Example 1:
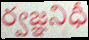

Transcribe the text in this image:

ర్వజ్ఞనిధీ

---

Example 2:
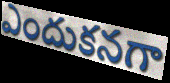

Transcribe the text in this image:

ఎందుకనగా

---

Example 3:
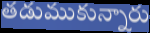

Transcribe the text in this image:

తడుముకున్నారు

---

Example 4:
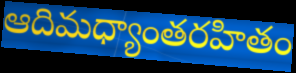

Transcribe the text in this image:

ఆదిమధ్యాంతరహితం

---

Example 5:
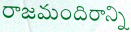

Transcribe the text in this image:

రాజమందిరాన్ని